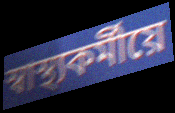
স্বাস্থ্যকৰ্মীয়ে